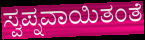
ಸ್ವಪ್ನವಾಯಿತಂತೆ